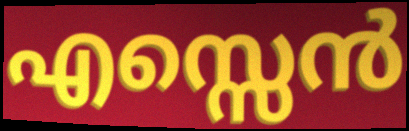
എസ്സെൻ